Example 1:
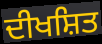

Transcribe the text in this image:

ਦੀਖਸ਼ਿਤ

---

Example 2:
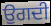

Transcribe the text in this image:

ਉਗਦੀ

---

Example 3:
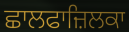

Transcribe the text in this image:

ਛਾਲਫਾਜ਼ਿਲਕਾ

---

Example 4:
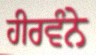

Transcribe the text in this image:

ਹੀਰਵੰਨੇ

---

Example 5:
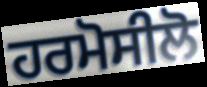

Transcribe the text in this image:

ਹਰਮੋਸੀਲੋ